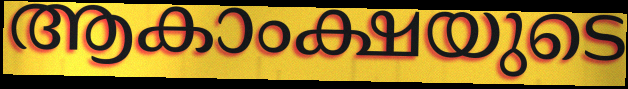
ആകാംക്ഷയുടെ